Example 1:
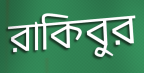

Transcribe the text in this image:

রাকিবুর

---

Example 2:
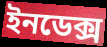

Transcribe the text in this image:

ইনডেক্স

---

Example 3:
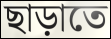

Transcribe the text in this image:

ছাড়াতে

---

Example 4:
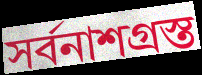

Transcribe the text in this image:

সর্বনাশগ্রস্ত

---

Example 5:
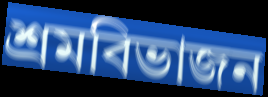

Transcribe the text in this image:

শ্রমবিভাজন